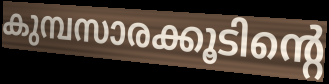
കുമ്പസാരക്കൂടിന്റെ